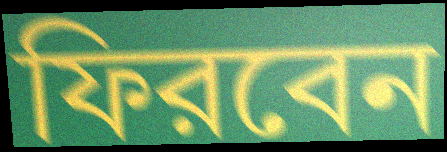
ফিরবেন